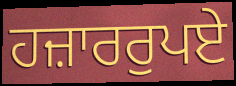
ਹਜ਼ਾਰਰੁਪਏ